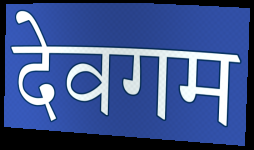
देवगम